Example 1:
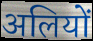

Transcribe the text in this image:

अलियों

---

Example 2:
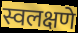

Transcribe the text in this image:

स्वलक्षणे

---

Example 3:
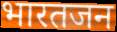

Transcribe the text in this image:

भारतजन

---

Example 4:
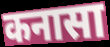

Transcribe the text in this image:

कनासा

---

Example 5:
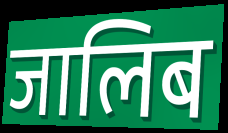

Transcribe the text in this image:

जालिब